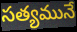
సత్యమునే